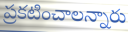
ప్రకటించాలన్నారు